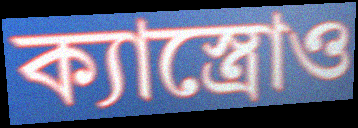
ক্যাস্ত্রোও